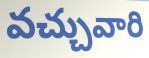
వచ్చువారి